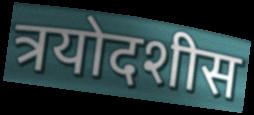
त्रयोदशीस